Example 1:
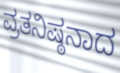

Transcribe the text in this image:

ವ್ರತನಿಷ್ಠನಾದ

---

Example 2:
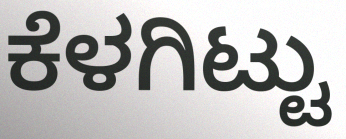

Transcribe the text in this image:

ಕೆಳಗಿಟ್ಟು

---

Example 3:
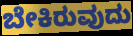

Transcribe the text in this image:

ಬೇಕಿರುವುದು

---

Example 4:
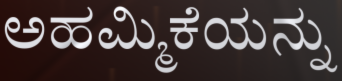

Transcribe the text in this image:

ಅಹಮ್ಮಿಕೆಯನ್ನು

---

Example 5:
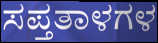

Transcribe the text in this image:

ಸಪ್ತತಾಳಗಳ